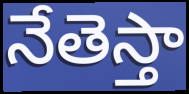
నేతెస్తా